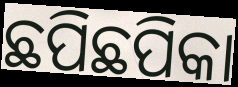
ଛପିଛପିକା